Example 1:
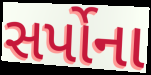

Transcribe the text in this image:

સર્પોના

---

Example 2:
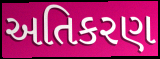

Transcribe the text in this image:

અતિકરણ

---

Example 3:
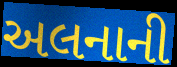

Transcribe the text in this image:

અલનાની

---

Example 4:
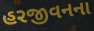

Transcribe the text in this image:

હરજીવનના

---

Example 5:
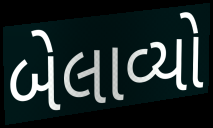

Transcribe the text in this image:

બેલાવ્યો